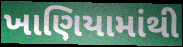
ખાણિયામાંથી